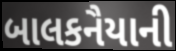
બાલકનૈયાની